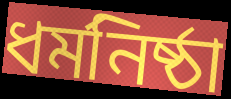
ধর্মনিষ্ঠা